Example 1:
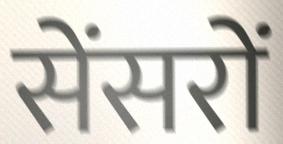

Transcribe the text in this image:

सेंसरों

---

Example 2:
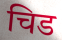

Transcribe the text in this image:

चिड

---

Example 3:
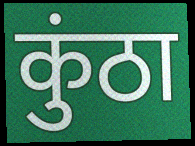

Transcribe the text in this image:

कुंठा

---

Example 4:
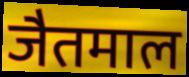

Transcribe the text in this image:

जैतमाल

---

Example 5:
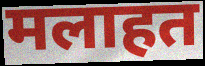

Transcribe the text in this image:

मलाहत